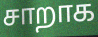
சாறாக